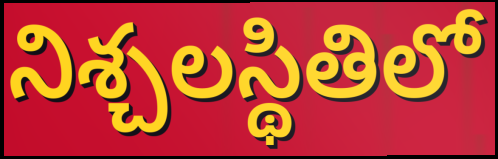
నిశ్చలస్థితిలో